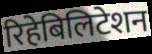
रिहेबिलिटेशन